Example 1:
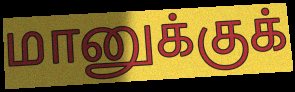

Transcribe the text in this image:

மானுக்குக்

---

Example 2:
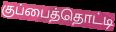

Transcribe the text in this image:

குப்பைத்தொட்டி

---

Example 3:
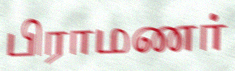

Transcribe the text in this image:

பிராமணர்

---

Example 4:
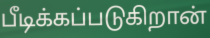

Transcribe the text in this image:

பீடிக்கப்படுகிறான்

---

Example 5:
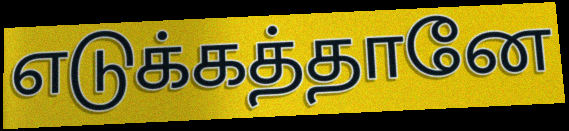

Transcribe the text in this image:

எடுக்கத்தானே